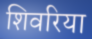
शिवरिया